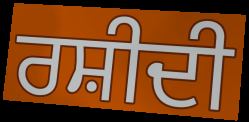
ਰਸ਼ੀਦੀ